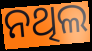
ନଥିଲ